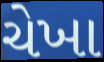
ચેખા